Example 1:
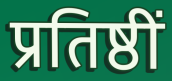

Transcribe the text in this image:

प्रतिष्ठीं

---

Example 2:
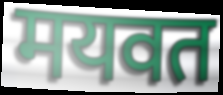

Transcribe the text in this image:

मयवत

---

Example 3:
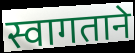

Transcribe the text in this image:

स्वागताने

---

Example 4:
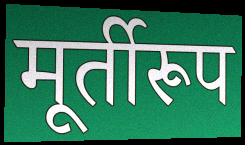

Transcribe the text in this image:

मूर्तीरूप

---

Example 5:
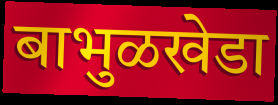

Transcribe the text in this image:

बाभुळखेडा